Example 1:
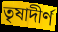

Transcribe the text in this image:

তৃষাদীর্ণ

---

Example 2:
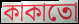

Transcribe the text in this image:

কাকাতো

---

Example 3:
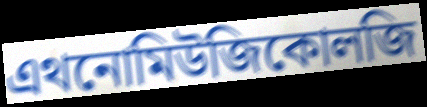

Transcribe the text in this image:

এথনোমিউজিকোলজি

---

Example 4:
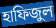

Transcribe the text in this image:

হাফিজুল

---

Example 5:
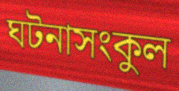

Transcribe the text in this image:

ঘটনাসংকুল